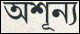
অশূন্য